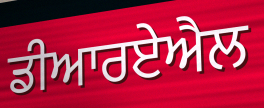
ਡੀਆਰਏਐਲ